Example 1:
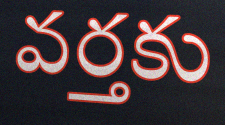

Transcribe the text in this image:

వర్తకు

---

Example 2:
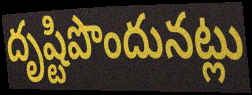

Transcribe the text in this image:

దృష్టిపొందునట్లు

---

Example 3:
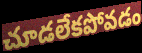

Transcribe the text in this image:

చూడలేకపోవడం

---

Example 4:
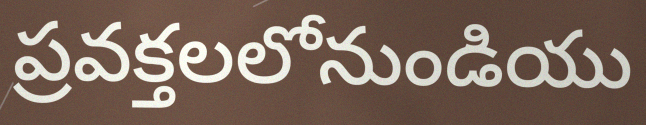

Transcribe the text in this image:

ప్రవక్తలలోనుండియు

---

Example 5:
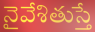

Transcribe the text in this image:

నైవేశితుస్తే